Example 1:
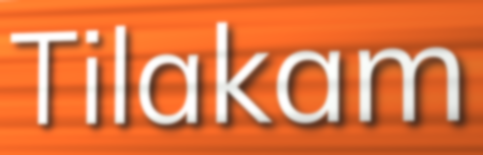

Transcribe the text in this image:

Tilakam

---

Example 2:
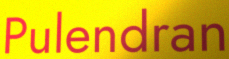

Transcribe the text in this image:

Pulendran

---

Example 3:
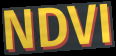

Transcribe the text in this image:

NDVI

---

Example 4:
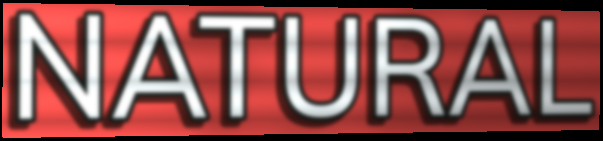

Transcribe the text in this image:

NATURAL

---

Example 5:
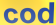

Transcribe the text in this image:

cod